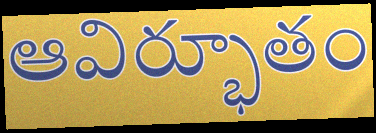
ఆవిర్భూతం